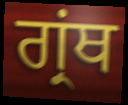
ਗ੍ਰਂਥ